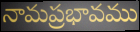
నామప్రభావము